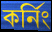
কর্নিং